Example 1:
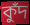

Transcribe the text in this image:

কুঁদ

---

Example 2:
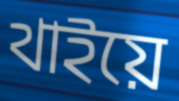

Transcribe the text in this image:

থাইয়ে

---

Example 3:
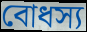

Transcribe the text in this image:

বোধস্য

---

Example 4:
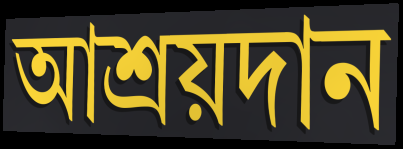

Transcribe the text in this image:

আশ্রয়দান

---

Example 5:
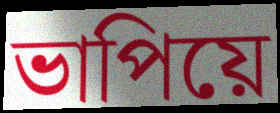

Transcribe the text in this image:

ভাপিয়ে